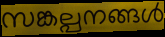
സങ്കല്പനങ്ങൾ